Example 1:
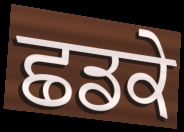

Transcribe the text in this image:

ਛਡਕੇ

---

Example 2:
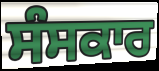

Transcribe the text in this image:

ਸੰਸਕਾਰ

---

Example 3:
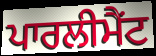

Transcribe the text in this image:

ਪਾਰਲੀਮੈਂਟ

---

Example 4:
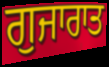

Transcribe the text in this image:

ਗੁਜਾਰਾਤ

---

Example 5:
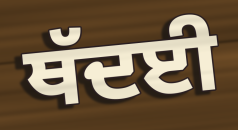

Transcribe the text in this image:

ਥੱਦਈ